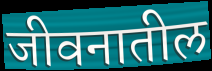
जीवनातील